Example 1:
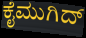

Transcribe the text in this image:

ಕೈಮುಗಿದ್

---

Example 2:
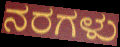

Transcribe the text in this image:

ನರಗಳು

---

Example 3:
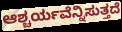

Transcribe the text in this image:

ಆಶ್ಚರ್ಯವೆನ್ನಿಸುತ್ತದೆ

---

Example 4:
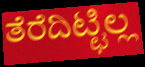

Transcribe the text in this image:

ತೆರೆದಿಟ್ಟಿಲ್ಲ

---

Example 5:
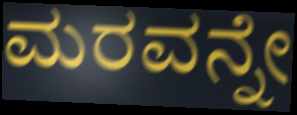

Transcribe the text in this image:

ಮರವನ್ನೇ